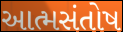
આત્મસંતોષ